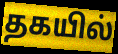
தகயில்